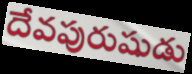
దేవపురుషుడు